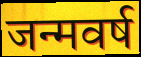
जन्मवर्ष